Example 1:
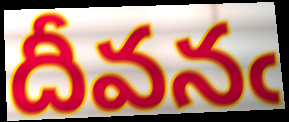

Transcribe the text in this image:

దీవనఁ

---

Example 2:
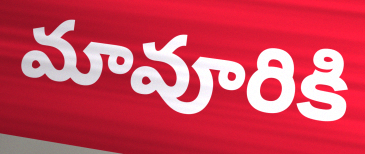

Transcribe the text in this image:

మావూరికి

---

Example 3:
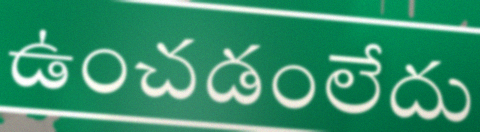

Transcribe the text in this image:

ఉంచడంలేదు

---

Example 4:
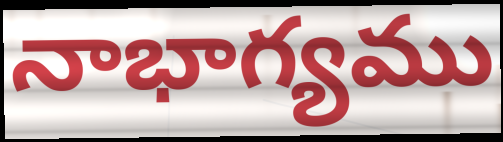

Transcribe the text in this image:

నాభాగ్యము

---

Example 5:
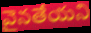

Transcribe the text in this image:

వైనతేయని